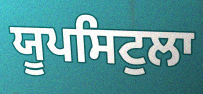
ਯੂਪਸਿਟੁਲਾ